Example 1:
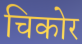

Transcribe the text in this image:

चिकोर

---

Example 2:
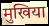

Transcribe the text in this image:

मुखिया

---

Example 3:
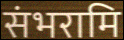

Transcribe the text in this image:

संभरामि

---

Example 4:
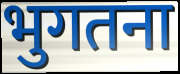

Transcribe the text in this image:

भुगतना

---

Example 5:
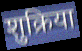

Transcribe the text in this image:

शुक्रिया